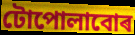
টোপোলাবোৰ